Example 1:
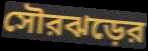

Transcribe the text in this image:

সৌরঝড়ের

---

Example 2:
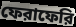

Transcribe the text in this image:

ফেরাফেরি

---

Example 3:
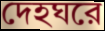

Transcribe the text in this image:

দেহঘরে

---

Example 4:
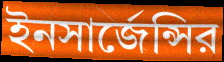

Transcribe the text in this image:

ইনসার্জেন্সির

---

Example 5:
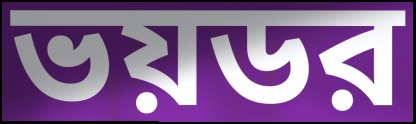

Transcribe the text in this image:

ভয়ডর